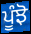
ਪੂੰਝੋ